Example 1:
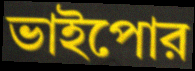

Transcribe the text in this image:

ভাইপোর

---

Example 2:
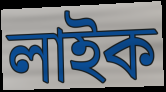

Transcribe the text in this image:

লাইক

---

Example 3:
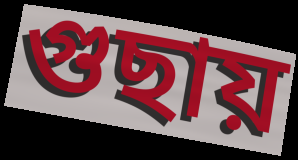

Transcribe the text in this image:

গুছায়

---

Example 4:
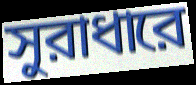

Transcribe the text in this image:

সুরাধারে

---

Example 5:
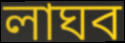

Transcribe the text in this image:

লাঘব